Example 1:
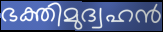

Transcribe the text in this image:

ഭക്തിമുദ്വഹൻ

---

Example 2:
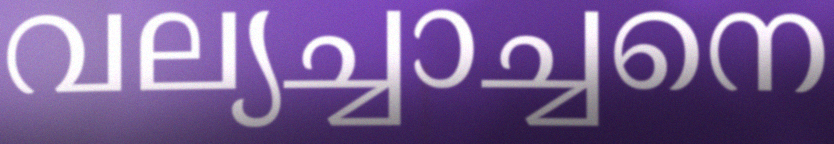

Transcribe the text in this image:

വല്യച്ചാച്ചനെ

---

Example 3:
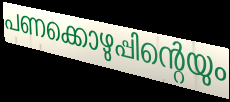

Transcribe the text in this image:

പണക്കൊഴുപ്പിന്റെയും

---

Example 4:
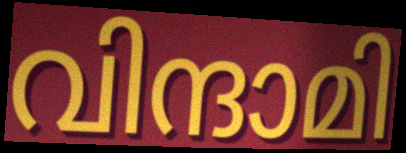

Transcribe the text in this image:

വിന്ദാമി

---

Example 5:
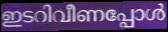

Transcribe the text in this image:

ഇടറിവീണപ്പോൾ